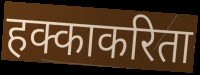
हक्काकरिता